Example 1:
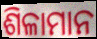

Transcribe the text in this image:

ଶିଳାମାନ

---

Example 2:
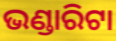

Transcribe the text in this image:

ଭଣ୍ଡାରିଟା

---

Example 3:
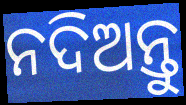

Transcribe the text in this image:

ନଦିଅନ୍ତୁ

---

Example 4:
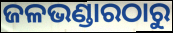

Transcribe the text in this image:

ଜଳଭଣ୍ଡାରଠାରୁ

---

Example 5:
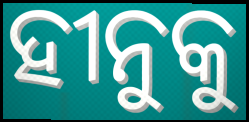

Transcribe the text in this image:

ହୀନୁକୁ